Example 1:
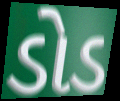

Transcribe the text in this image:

ડોડ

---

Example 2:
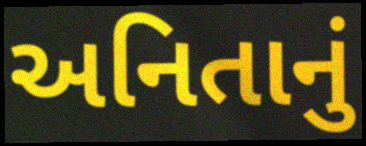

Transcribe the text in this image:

અનિતાનું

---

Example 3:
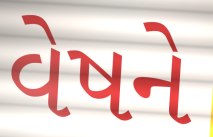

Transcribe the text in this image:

વેષને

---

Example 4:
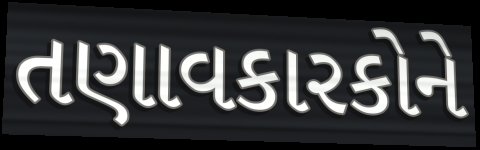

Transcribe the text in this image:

તણાવકારકોને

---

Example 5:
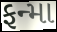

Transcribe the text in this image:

ફન્મા